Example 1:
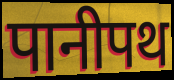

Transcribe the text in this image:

पानीपथ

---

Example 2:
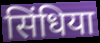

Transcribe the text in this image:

सिंधिया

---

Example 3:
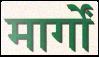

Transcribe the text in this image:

मार्गों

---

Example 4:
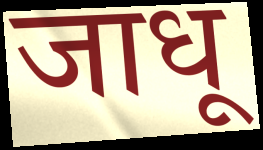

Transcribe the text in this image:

जाधू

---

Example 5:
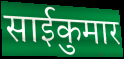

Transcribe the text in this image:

साईकुमार